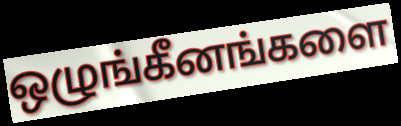
ஒழுங்கீனங்களை